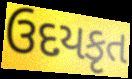
ઉદયકૃત